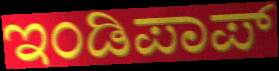
ಇಂಡಿಪಾಪ್